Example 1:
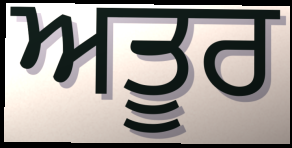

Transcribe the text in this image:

ਅਤੂਰ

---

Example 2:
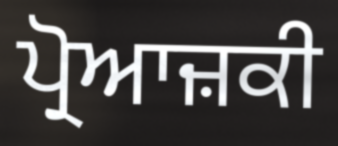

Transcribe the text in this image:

ਪ੍ਰੋਆਜ਼ਕੀ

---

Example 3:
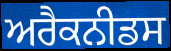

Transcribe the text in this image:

ਅਰੈਕਨੀਡਸ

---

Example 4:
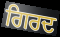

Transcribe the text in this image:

ਗਿਰਦ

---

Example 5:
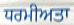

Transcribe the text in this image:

ਧਰਮੀਅਤਾ